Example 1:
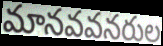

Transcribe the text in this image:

మానవవనరుల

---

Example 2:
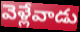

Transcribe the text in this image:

వెళ్లేవాడు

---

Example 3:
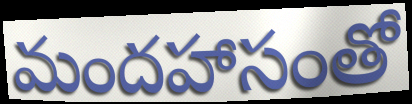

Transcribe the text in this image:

మందహాసంతో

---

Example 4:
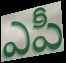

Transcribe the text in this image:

ఎపీ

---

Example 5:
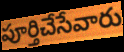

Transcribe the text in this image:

పూర్తిచేసేవారు